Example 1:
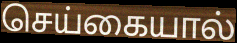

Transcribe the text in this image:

செய்கையால்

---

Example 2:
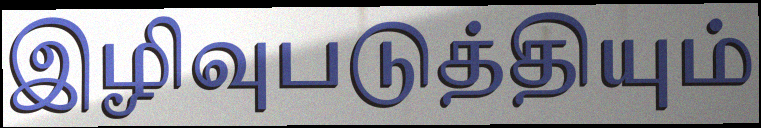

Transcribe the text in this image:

இழிவுபடுத்தியும்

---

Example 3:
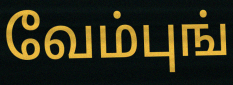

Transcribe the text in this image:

வேம்புங்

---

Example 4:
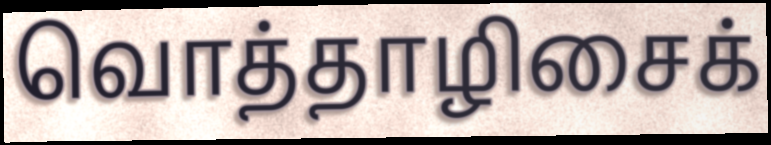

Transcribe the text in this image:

வொத்தாழிசைக்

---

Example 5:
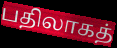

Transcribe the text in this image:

பதிலாகத்